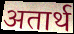
अतार्थ